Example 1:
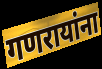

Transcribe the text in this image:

गणरायांना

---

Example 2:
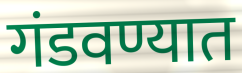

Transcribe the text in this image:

गंडवण्यात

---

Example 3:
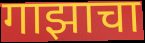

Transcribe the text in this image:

गाझाचा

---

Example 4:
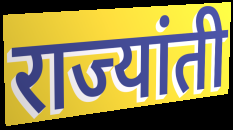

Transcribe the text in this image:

राज्यांती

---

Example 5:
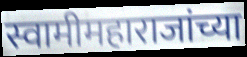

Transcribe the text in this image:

स्वामीमहाराजांच्या